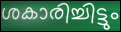
ശകാരിച്ചിട്ടും